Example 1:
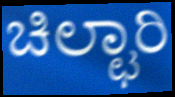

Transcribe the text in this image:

ಚಿಲ್ಟಾರಿ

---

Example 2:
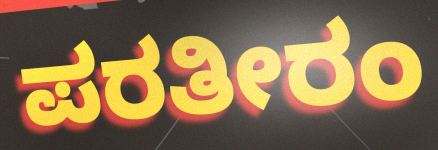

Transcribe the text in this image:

ಪರತೀರಂ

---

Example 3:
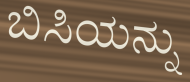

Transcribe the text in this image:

ಬಿಸಿಯನ್ನು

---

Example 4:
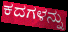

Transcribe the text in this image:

ಕದಗಳನ್ನು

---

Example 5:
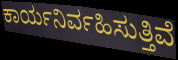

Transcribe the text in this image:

ಕಾರ್ಯನಿರ್ವಹಿಸುತ್ತಿವೆ